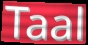
Taal